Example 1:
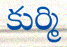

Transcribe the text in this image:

కుర్మి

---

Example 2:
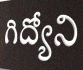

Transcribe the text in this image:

గిద్యోని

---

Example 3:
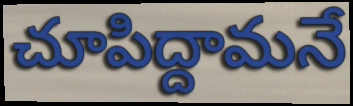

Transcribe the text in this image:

చూపిద్దామనే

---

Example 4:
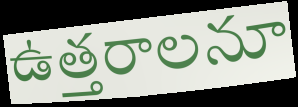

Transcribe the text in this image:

ఉత్తరాలనూ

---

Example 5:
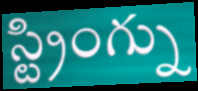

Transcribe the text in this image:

స్ట్రింగ్ను